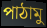
পাঠামু